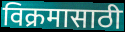
विक्रमासाठी